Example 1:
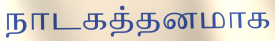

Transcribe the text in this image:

நாடகத்தனமாக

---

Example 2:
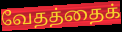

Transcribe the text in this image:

வேதத்தைக்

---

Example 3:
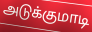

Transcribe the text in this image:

அடுக்குமாடி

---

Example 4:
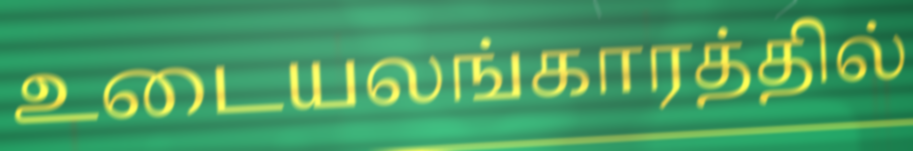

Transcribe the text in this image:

உடையலங்காரத்தில்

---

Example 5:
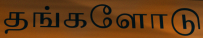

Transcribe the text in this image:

தங்களோடு